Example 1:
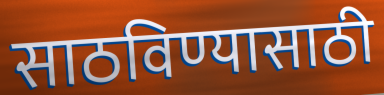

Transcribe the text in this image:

साठविण्यासाठी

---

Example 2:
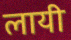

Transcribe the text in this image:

लायी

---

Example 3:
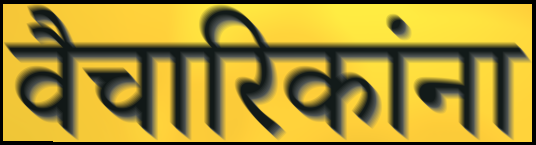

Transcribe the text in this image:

वैचारिकांना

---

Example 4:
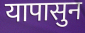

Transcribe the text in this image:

यापासुन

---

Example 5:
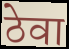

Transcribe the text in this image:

ठेवा